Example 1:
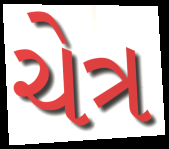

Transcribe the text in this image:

ચેત્ર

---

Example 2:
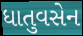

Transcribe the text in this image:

ધાતુવસેન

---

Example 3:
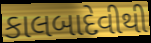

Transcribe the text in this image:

કાલબાદેવીથી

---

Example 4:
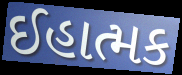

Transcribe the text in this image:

ઈહાત્મક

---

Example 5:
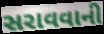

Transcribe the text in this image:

સરાવવાની